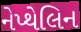
નેપ્થેલિન